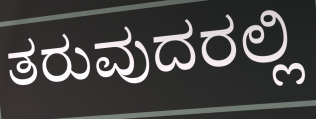
ತರುವುದರಲ್ಲಿ